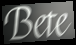
Bete